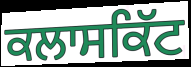
ਕਲਾਸਕਿੱਟ